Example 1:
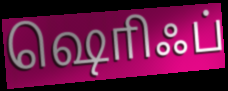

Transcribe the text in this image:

ஷெரிஃப்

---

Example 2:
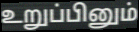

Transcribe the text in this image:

உறுப்பினும்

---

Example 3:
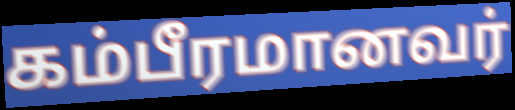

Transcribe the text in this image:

கம்பீரமானவர்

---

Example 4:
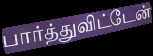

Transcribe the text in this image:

பார்த்துவிட்டேன்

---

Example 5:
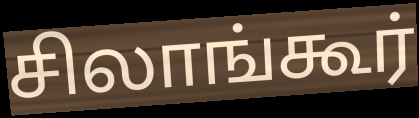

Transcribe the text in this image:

சிலாங்கூர்